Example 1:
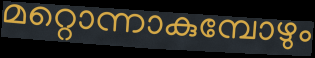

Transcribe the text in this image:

മറ്റൊന്നാകുമ്പോഴും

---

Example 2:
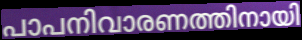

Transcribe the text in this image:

പാപനിവാരണത്തിനായി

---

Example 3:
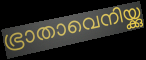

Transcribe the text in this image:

ഭ്രാതാവെനിയ്ക്കു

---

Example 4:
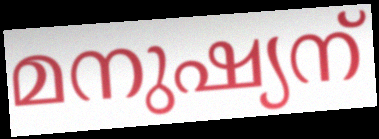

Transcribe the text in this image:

മനുഷ്യന്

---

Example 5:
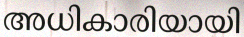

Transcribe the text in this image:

അധികാരിയായി